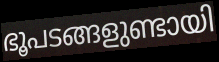
ഭൂപടങ്ങളുണ്ടായി